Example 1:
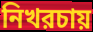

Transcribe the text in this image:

নিখরচায়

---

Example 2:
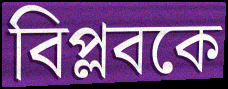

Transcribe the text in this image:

বিপ্লবকে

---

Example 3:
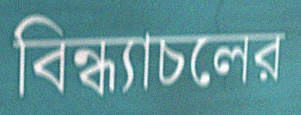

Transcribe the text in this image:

বিন্ধ্যাচলের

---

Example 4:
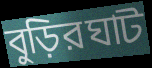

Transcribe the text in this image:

বুড়িরঘাট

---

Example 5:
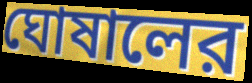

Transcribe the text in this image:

ঘোষালের